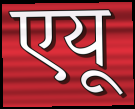
एयू